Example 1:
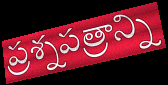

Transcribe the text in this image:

ప్రశ్నపత్రాన్ని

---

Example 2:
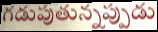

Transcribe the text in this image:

గడుపుతున్నప్పుడు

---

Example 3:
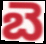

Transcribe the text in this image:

బె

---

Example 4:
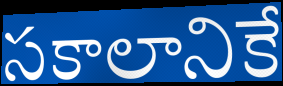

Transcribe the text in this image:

సకాలానికే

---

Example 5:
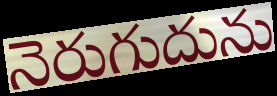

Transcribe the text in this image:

నెరుగుదును